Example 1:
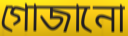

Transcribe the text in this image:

গোজানো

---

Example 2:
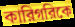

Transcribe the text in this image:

কারিগরিকে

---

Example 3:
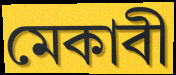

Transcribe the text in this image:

মেকাবী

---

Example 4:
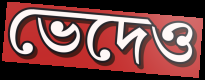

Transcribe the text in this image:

ভেদেও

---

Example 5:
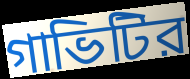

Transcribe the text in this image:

গাভিটির